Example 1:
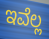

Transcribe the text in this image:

ಇವೆಲ್ಲ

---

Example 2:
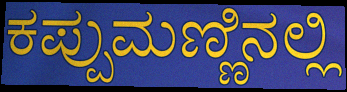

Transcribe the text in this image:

ಕಪ್ಪುಮಣ್ಣಿನಲ್ಲಿ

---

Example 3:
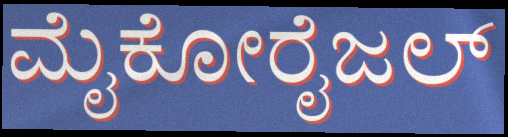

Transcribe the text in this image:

ಮೈಕೋರೈಜಲ್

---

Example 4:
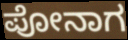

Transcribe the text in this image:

ಪೋನಾಗ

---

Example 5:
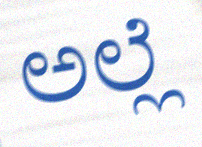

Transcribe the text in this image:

ಅಲ್ಲೆ